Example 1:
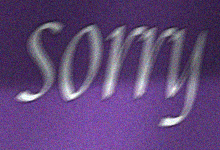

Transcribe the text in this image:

sorry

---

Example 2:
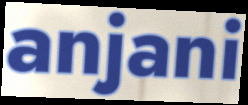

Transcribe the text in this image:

anjani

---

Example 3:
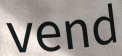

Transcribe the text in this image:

vend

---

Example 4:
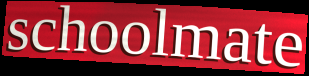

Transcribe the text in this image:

schoolmate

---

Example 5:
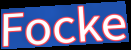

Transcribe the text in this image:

Focke